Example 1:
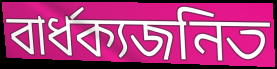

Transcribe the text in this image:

বার্ধক্যজনিত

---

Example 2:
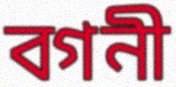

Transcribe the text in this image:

বগনী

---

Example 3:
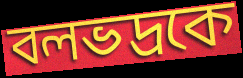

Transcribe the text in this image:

বলভদ্রকে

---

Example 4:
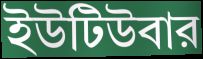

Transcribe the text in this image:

ইউটিউবার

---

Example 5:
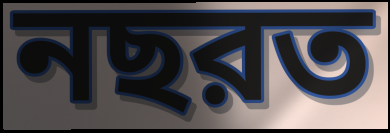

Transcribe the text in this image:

নছরত